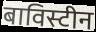
बाविस्टीन